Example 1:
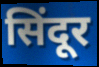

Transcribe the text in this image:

सिंदूर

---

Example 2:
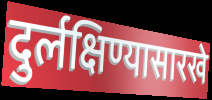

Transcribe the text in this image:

दुर्लक्षिण्यासारखे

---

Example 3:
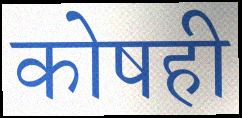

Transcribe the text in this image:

कोषही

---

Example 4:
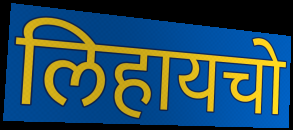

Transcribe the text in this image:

लिहायचो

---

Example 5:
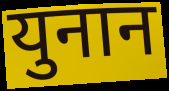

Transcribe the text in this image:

युनान